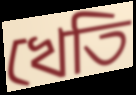
খেতি